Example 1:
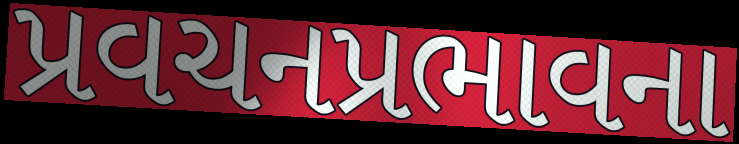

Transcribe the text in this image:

પ્રવચનપ્રભાવના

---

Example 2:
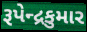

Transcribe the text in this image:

રૂપેન્દ્રકુમાર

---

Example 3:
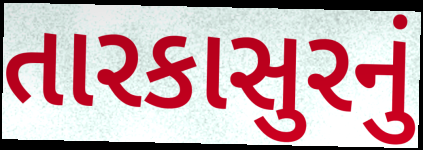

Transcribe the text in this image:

તારકાસુરનું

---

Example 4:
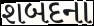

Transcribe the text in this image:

શબદના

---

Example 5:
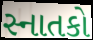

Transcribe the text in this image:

સ્નાતકો